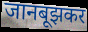
जानबूझकर